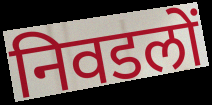
निवडलों